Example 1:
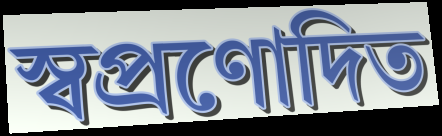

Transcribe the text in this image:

স্বপ্রণোদিত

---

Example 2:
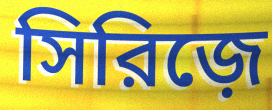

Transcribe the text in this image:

সিরিজ়ে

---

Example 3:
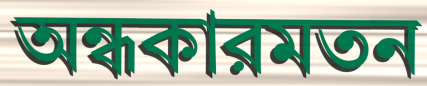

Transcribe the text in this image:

অন্ধকারমতন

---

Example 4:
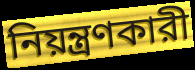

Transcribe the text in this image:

নিয়ন্ত্রণকারী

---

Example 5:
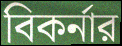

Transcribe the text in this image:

বিকর্নার